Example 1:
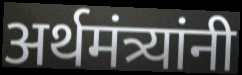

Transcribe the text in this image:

अर्थमंत्र्यांनी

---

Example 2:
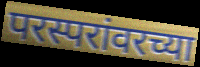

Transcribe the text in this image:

परस्परांवरच्या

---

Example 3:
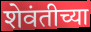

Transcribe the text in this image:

शेवंतीच्या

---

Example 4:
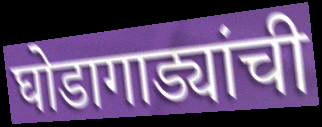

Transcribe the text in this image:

घोडागाड्यांची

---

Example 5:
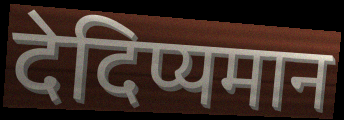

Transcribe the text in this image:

देदिप्यमान